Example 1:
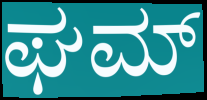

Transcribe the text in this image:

ಘಮ್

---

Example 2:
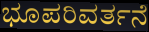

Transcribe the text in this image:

ಭೂಪರಿವರ್ತನೆ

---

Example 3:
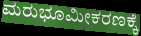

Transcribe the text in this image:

ಮರುಭೂಮೀಕರಣಕ್ಕೆ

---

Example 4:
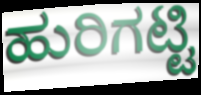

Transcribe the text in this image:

ಹುರಿಗಟ್ಟಿ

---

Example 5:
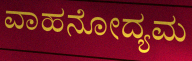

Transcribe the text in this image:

ವಾಹನೋದ್ಯಮ